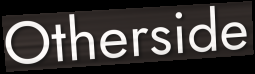
Otherside